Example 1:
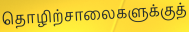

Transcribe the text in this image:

தொழிற்சாலைகளுக்குத்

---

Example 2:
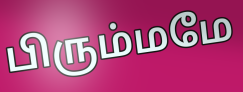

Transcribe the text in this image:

பிரும்மமே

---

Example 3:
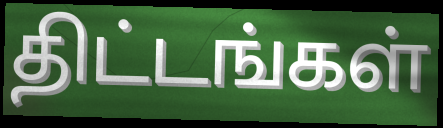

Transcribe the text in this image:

திட்டங்கள்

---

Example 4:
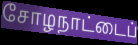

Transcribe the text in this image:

சோழநாட்டைப்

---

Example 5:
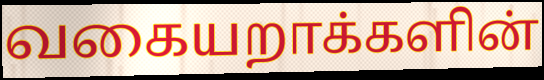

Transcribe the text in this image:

வகையறாக்களின்